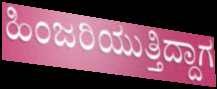
ಹಿಂಜರಿಯುತ್ತಿದ್ದಾಗ